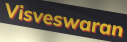
Visveswaran